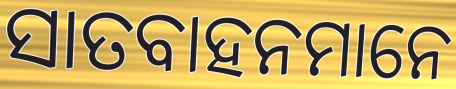
ସାତବାହନମାନେ